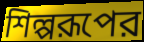
শিল্পরূপের